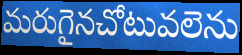
మరుగైనచోటువలెను